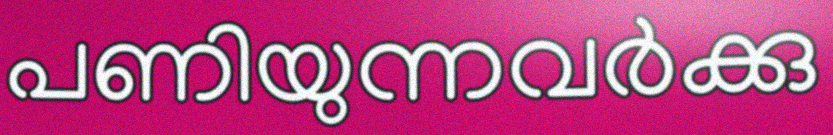
പണിയുന്നവർക്കു